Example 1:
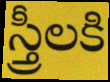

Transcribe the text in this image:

స్త్రీలకి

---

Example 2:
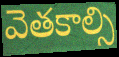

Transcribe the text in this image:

వెతకాల్సి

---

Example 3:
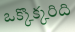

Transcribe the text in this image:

ఒక్కొక్కరిది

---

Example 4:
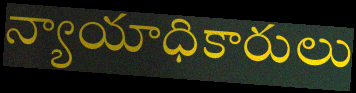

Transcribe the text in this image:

న్యాయాధికారులు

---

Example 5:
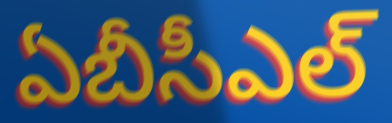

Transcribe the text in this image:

ఏబీసీఎల్